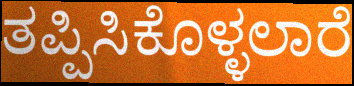
ತಪ್ಪಿಸಿಕೊಳ್ಳಲಾರೆ